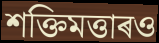
শক্তিমত্তাৰও